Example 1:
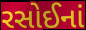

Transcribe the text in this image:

રસોઈનાં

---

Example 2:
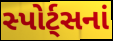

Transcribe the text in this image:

સ્પોર્ટ્સનાં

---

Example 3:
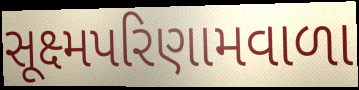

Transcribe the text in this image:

સૂક્ષ્મપરિણામવાળા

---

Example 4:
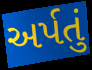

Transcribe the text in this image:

અર્પતું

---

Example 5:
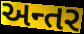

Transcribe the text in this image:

અન્તર